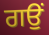
ਗਉਂ